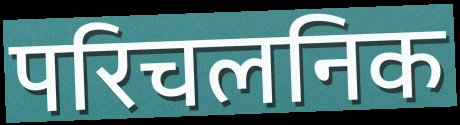
परिचलनिक